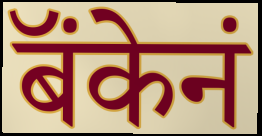
बॅंकेनं